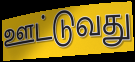
ஊட்டுவது